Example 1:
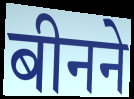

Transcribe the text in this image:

बीनने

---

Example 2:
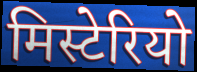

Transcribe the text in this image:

मिस्टेरियो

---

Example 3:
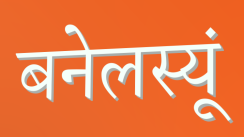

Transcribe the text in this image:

बनेलस्यूं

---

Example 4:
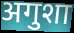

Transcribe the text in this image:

अगुशा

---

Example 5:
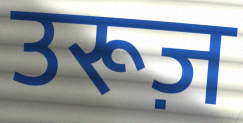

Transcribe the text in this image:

उरूज़